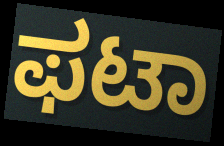
ಫಟಾ